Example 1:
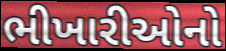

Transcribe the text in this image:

ભીખારીઓનો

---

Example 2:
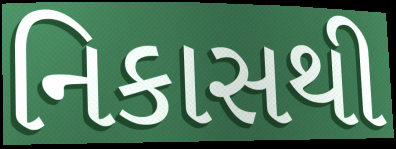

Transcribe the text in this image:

નિકાસથી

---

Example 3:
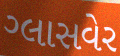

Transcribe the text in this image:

ગ્લાસવેર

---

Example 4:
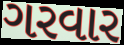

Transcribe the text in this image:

ગરવાર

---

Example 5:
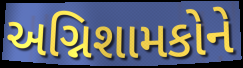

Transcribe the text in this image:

અગ્નિશામકોને